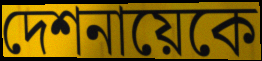
দেশনায়েকে